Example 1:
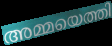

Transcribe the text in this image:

അമ്മയെത്തി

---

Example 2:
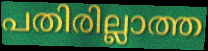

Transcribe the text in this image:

പതിരില്ലാത്ത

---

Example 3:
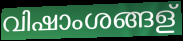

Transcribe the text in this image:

വിഷാംശങ്ങള്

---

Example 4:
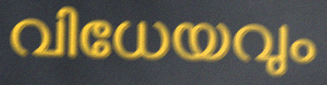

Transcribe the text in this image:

വിധേയവും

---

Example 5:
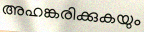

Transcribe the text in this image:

അഹങ്കരിക്കുകയും